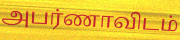
அபர்ணாவிடம்